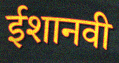
ईशानवी